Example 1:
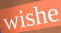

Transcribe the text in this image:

wishe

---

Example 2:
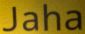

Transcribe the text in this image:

Jaha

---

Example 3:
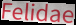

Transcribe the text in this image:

Felidae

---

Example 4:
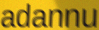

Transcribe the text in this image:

adannu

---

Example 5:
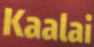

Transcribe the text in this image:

Kaalai